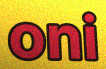
oni